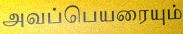
அவப்பெயரையும்